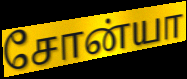
சோன்யா